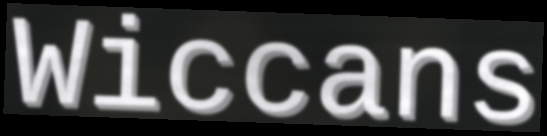
Wiccans